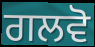
ਗਲਵੋ